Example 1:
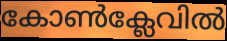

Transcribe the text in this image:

കോൺക്ലേവിൽ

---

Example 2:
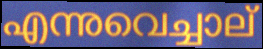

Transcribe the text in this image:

എന്നുവെച്ചാല്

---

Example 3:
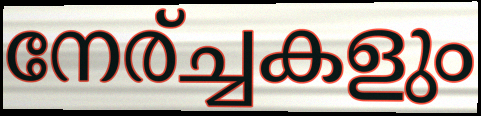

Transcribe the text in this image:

നേര്ച്ചകളും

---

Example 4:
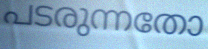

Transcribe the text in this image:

പടരുന്നതോ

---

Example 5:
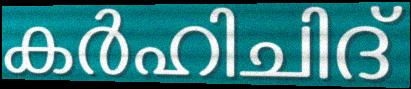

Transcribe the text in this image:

കർഹിചിദ്